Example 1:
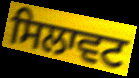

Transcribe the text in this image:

ਸਿਲਾਵਟ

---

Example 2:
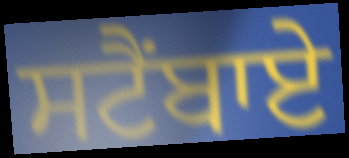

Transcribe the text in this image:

ਸਟੈਂਬਾਏ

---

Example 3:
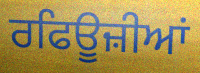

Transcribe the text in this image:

ਰਫਿਊਜ਼ੀਆਂ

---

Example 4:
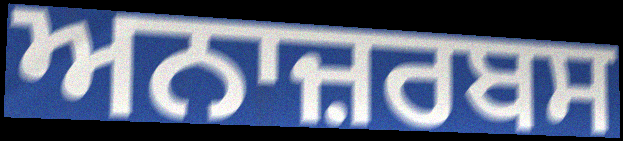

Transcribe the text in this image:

ਅਨਾਜ਼ਰਬਸ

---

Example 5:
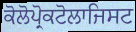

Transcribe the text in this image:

ਕੋਲੋਪ੍ਰੋਕਟੋਲਾਜਿਸਟ